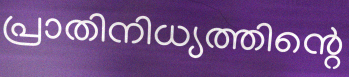
പ്രാതിനിധ്യത്തിന്റെ